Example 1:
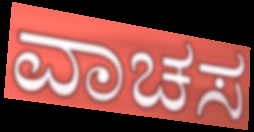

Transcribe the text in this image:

ವಾಚಸ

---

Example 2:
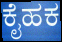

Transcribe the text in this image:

ಕೈಹಕ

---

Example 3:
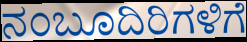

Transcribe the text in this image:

ನಂಬೂದಿರಿಗಳಿಗೆ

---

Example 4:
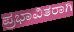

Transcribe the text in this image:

ಪ್ರಭಾವಿತರಾಗಿ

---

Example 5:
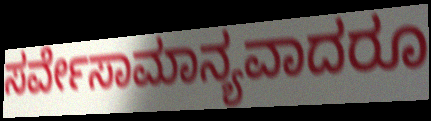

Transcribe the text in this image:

ಸರ್ವೇಸಾಮಾನ್ಯವಾದರೂ